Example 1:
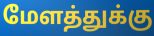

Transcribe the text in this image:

மேளத்துக்கு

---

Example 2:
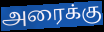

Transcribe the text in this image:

அரைக்கு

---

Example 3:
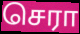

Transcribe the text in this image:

செரா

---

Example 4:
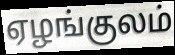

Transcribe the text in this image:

ஏழங்குலம்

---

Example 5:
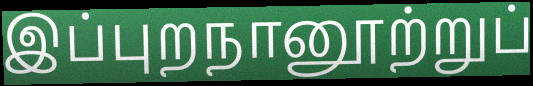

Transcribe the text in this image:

இப்புறநானூற்றுப்